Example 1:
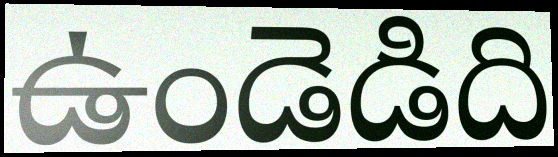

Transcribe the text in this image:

ఉండెడిది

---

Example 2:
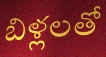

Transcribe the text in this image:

బిళ్లలతో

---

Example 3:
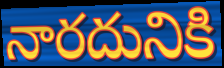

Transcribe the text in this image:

నారదునికి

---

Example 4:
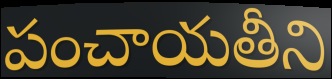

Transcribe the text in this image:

పంచాయతీని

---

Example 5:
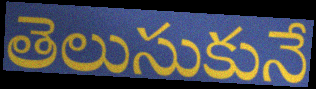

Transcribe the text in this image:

తెలుసుకునే